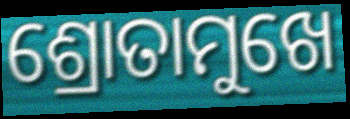
ଶ୍ରୋତାମୁଖେ